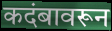
कदंबावरून